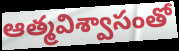
ఆత్మవిశ్వాసంతో